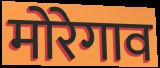
मोरेगाव